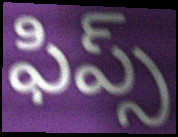
ఫిప్స్